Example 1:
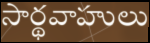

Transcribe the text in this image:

సార్థవాహులు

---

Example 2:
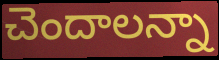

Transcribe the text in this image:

చెందాలన్నా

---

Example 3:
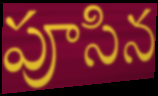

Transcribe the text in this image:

పూసిన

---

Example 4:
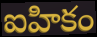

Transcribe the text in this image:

ఐహికం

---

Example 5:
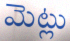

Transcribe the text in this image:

మెట్లు